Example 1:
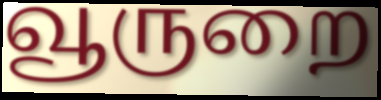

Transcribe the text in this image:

வூருறை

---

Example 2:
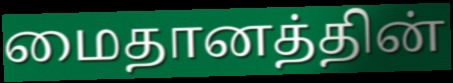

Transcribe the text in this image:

மைதானத்தின்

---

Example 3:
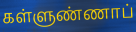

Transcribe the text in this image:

கள்ளுண்ணாப்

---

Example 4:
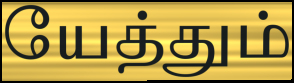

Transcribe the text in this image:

யேத்தும்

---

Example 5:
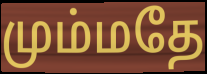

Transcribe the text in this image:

மும்மதே